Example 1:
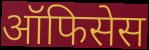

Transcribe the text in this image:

ऑफिसेस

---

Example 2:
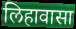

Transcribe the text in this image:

लिहावासा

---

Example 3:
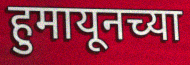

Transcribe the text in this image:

हुमायूनच्या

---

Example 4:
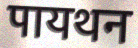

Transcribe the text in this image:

पायथन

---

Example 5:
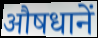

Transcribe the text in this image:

औषधानें